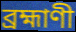
ব্রহ্মাণী